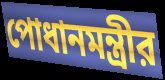
পোধানমন্ত্রীর